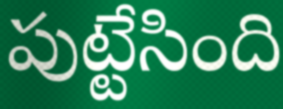
పుట్టేసింది